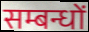
सम्बन्धों